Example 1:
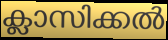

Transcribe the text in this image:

ക്ലാസിക്കൽ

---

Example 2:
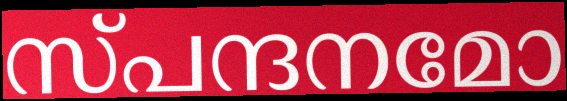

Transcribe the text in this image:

സ്പന്ദനമോ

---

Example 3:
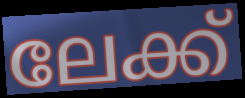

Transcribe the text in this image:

ലേക്ക്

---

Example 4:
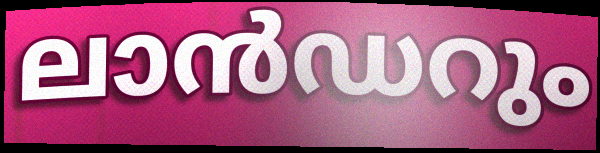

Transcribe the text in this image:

ലാൻഡറും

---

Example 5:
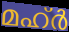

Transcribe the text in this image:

മഹ്ർ